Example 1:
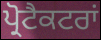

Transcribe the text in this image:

ਪ੍ਰੋਟੈਕਟਰਾਂ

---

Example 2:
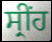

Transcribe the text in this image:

ਸ੍ਰੀਂਹ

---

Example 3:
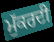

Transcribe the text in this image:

ਮੁੱਕਰਦੀ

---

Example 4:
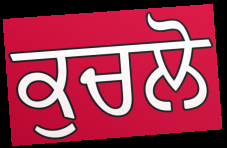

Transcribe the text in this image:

ਕੁਚਲੋ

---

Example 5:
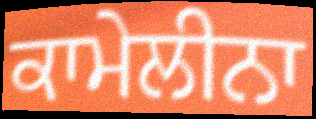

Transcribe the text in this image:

ਕਾਮੇਲੀਨਾ